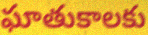
ఘాతుకాలకు